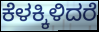
ಕೆಳಕ್ಕಿಳಿದರೆ